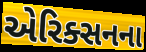
એરિક્સનના